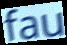
fau